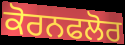
ਕੋਰਨਫਲੋਰ